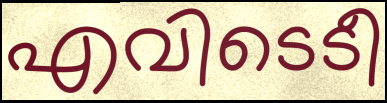
എവിടെടീ